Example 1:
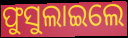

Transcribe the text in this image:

ଫୁସୁଲାଇଲେ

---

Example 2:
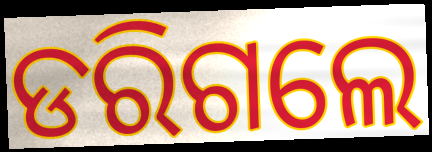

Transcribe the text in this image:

ଡରିଗଲେ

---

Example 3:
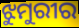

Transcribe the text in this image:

ଝୁମୁରୀର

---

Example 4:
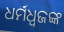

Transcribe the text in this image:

ଧର୍ମଧ୍ୱଜଙ୍କ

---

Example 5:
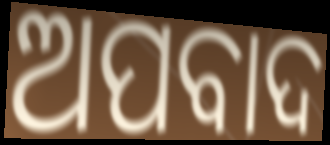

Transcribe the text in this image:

ଅପବାଦ